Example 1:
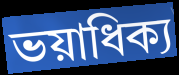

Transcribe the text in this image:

ভয়াধিক্য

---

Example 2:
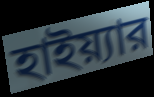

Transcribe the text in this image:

হাইয়্যার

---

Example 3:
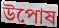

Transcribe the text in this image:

উপোষ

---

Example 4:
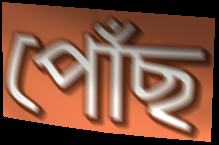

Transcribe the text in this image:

পোঁছ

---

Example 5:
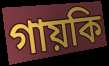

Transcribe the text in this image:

গায়কি